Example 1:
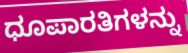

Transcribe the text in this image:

ಧೂಪಾರತಿಗಳನ್ನು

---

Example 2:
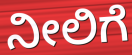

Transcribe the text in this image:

ನೀಲಿಗೆ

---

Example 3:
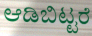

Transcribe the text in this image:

ಆಡಿಬಿಟ್ಟರೆ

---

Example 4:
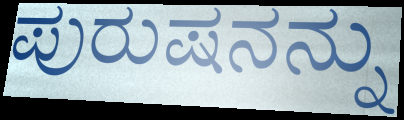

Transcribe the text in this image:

ಪುರುಷನನ್ನು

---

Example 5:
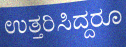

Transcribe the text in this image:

ಉತ್ತರಿಸಿದ್ದರೂ